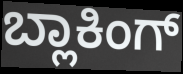
ಬ್ಲಾಕಿಂಗ್